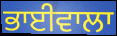
ਭਾਈਵਾਲਾ